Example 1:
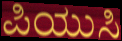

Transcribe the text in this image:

ಪಿಯುಸಿ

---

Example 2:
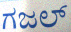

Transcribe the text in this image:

ಗಜಲ್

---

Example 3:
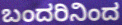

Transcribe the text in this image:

ಬಂದರಿನಿಂದ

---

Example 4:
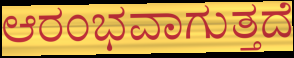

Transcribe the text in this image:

ಆರಂಭವಾಗುತ್ತದೆ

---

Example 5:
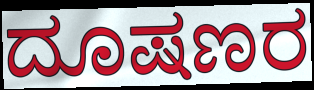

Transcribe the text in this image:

ದೂಷಣರ